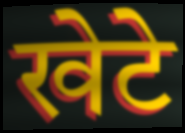
खेटे